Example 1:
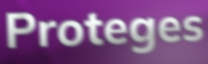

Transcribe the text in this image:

Proteges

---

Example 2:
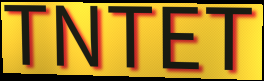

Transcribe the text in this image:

TNTET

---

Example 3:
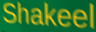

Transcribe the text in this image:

Shakeel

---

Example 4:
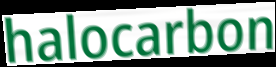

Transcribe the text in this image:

halocarbon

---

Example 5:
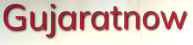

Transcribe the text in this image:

Gujaratnow